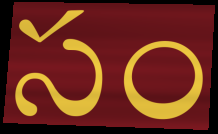
సం